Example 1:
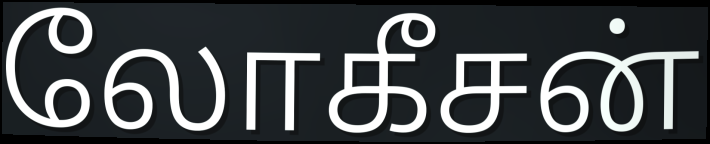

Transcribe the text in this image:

லோகீசன்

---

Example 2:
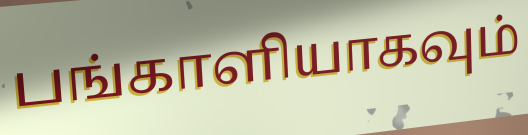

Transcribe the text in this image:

பங்காளியாகவும்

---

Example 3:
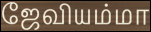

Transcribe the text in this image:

ஜேவியம்மா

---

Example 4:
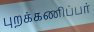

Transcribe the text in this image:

புறக்கணிப்பர்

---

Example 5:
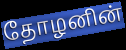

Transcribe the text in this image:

தோழனின்